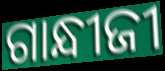
ଗାନ୍ଧୀଜୀ